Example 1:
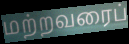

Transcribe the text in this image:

மற்றவரைப்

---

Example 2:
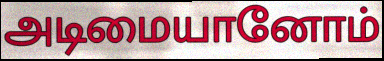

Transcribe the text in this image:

அடிமையானோம்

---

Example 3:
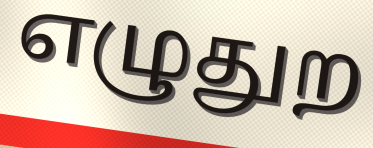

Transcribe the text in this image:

எழுதுற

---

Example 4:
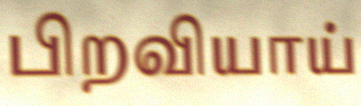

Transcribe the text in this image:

பிறவியாய்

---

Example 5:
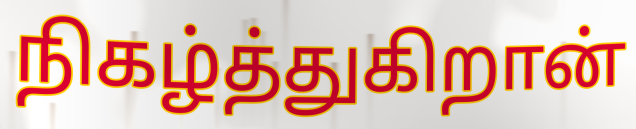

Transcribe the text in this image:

நிகழ்த்துகிறான்